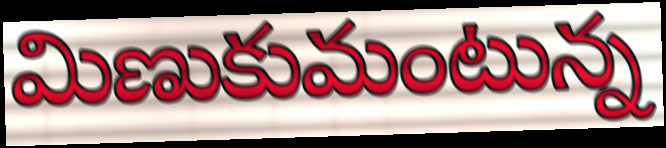
మిణుకుమంటున్న